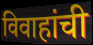
विवाहांची